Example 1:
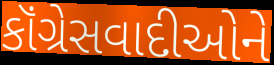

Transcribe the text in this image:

કૉંગ્રેસવાદીઓને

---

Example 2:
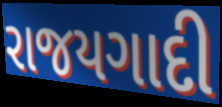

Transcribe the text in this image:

રાજયગાદી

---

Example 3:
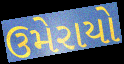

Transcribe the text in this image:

ઉમેરાયો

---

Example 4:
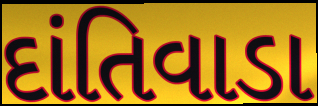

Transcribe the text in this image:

દાંતિવાડા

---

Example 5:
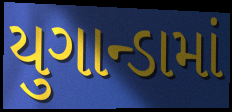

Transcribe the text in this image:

યુગાન્ડામાં